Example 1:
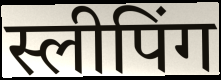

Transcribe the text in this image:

स्लीपिंग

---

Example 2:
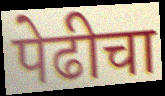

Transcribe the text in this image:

पेढीचा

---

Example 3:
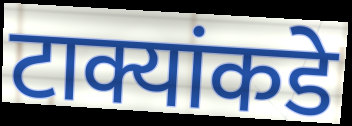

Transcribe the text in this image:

टाक्यांकडे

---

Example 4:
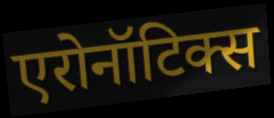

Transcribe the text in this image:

एरोनॉटिक्स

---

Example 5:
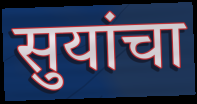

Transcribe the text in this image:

सुयांचा